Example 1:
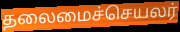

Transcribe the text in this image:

தலைமைச்செயலர்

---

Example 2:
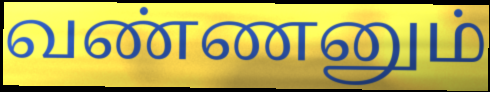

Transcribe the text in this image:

வண்ணனும்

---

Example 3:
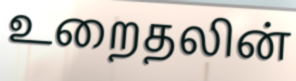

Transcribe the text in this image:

உறைதலின்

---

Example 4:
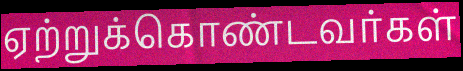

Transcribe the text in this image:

ஏற்றுக்கொண்டவர்கள்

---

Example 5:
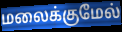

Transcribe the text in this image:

மலைக்குமேல்